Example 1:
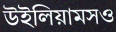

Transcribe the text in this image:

উইলিয়ামসও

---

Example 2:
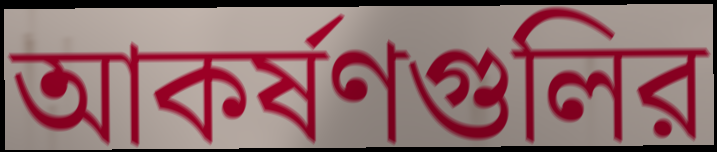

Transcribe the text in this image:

আকর্ষণগুলির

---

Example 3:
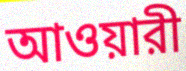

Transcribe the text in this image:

আওয়ারী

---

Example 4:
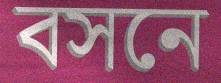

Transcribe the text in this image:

বসনে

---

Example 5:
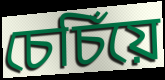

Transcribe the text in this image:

চেচিঁয়ে